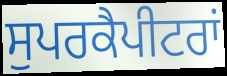
ਸੁਪਰਕੈਪੀਟਰਾਂ